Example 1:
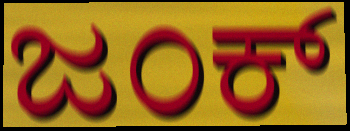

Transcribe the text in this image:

ಜಂಕ್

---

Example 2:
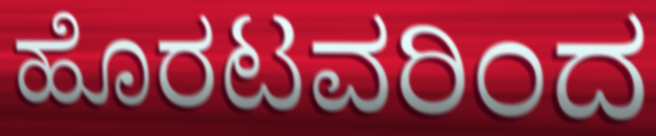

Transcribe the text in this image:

ಹೊರಟವರಿಂದ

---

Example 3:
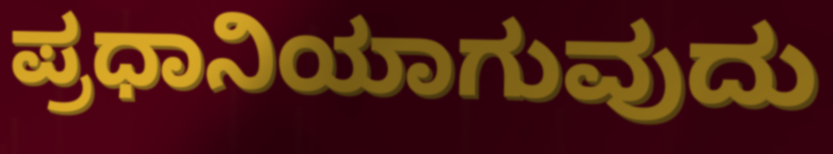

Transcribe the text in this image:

ಪ್ರಧಾನಿಯಾಗುವುದು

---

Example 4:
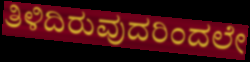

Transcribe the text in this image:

ತಿಳಿದಿರುವುದರಿಂದಲೇ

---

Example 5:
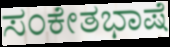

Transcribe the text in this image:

ಸಂಕೇತಭಾಷೆ